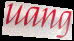
uang